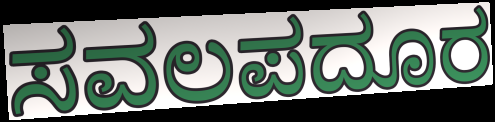
ಸವಲಪದೂರ